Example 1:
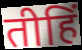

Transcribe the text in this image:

तीहिं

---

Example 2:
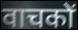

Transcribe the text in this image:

वाचकों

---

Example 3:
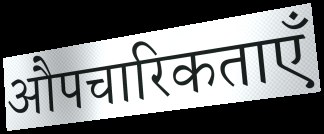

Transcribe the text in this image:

औपचारिकताएँ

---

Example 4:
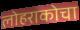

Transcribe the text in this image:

लोहराकोचा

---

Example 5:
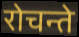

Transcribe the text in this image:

रोचन्ते